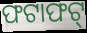
ଫଟାଫଟ୍